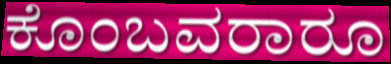
ಕೊಂಬವರಾರೂ